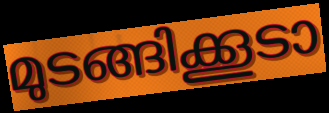
മുടങ്ങിക്കൂടാ